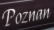
Poznan